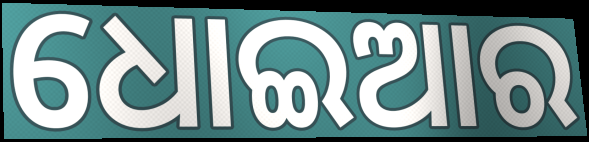
ଧୋଇଆର